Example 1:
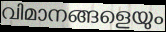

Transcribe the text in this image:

വിമാനങ്ങളെയും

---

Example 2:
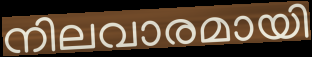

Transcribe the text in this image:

നിലവാരമായി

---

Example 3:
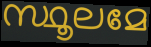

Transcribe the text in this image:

സ്ഥൂലമേ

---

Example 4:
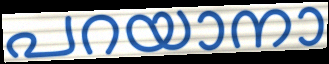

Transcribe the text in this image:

പറയാനാ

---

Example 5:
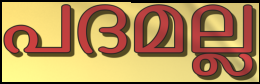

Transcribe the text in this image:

പദമല്ല